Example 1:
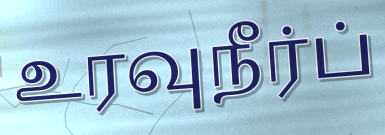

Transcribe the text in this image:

உரவுநீர்ப்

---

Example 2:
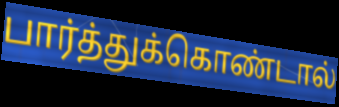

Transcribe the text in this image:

பார்த்துக்கொண்டால்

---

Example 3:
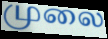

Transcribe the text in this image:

முலை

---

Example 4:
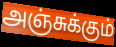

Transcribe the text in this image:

அஞ்சுக்கும்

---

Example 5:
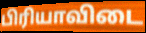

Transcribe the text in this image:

பிரியாவிடை